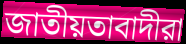
জাতীয়তাবাদীরা